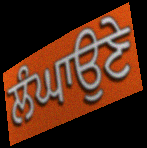
ਲੰਘਾਉਣੇ